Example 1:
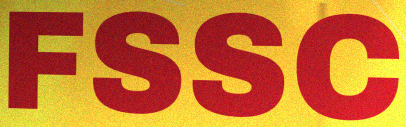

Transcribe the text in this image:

FSSC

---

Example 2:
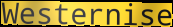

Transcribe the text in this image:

Westernise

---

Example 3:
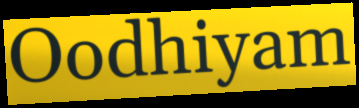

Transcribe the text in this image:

Oodhiyam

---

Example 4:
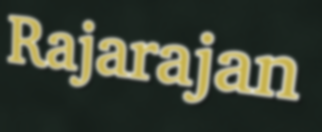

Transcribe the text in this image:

Rajarajan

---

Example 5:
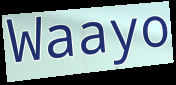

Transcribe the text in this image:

Waayo